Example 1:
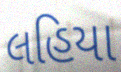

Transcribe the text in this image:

લહિયા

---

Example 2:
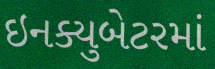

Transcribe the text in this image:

ઇનક્યુબેટરમાં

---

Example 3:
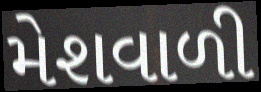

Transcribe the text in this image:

મેશવાળી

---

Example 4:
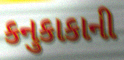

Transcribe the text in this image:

કનુકાકાની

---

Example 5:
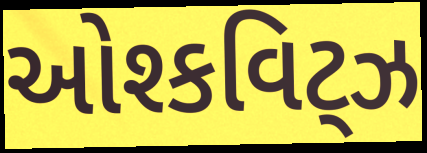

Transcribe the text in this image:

ઓશ્કવિટ્ઝ